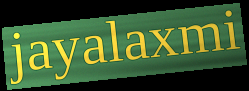
jayalaxmi